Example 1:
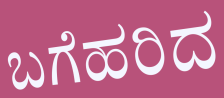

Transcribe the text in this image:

ಬಗೆಹರಿದ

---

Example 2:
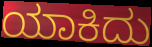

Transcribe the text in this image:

ಯಾಕಿದು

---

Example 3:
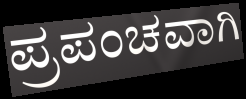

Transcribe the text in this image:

ಪ್ರಪಂಚವಾಗಿ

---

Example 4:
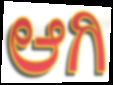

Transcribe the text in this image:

ಆಗಿ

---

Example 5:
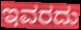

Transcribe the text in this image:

ಇವರದು